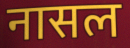
नासल